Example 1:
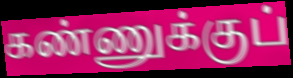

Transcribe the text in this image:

கண்ணுக்குப்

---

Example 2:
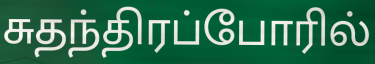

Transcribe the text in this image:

சுதந்திரப்போரில்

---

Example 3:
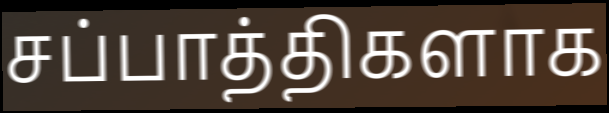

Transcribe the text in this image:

சப்பாத்திகளாக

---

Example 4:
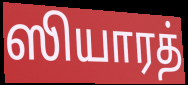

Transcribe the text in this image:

ஸியாரத்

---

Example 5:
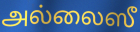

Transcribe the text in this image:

அல்லைஸீ